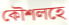
কৌশলহে